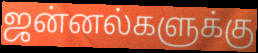
ஜன்னல்களுக்கு